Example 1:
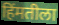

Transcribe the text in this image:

हिंमतीला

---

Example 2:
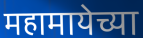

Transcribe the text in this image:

महामायेच्या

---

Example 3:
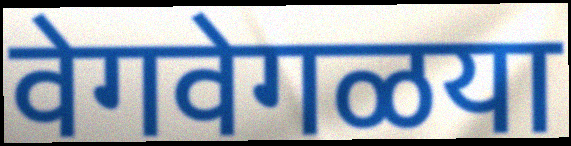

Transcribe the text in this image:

वेगवेगळया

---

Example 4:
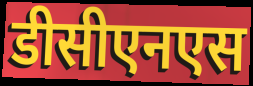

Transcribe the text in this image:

डीसीएनएस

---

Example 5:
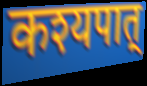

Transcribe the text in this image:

कश्यपात्